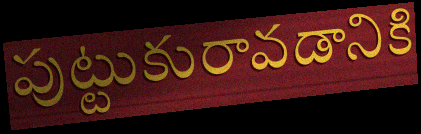
పుట్టుకురావడానికి